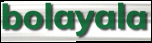
bolayala